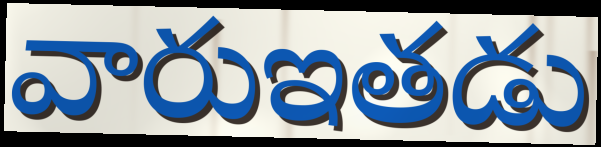
వారుఇతడు